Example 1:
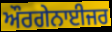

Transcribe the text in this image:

ਔਰਗੇਨਾਈਜਰ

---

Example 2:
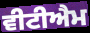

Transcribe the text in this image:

ਵੀਟੀਐਮ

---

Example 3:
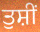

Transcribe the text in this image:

ਤੁਸ਼ੀਂ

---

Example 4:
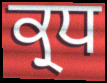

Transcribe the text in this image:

ਕ੍ਰਧ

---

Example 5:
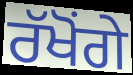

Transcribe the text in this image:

ਰੱਖੋਂਗੇ